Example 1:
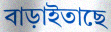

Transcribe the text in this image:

বাড়াইতাছে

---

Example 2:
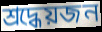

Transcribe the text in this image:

শ্রদ্ধেয়জন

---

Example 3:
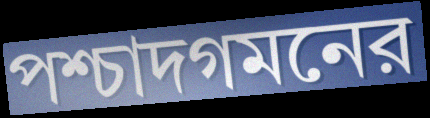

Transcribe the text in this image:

পশ্চাদগমনের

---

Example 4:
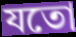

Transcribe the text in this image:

যতো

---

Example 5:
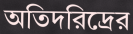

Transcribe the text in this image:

অতিদরিদ্রের